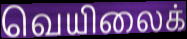
வெயிலைக்